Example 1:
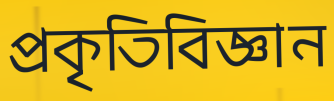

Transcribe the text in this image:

প্রকৃতিবিজ্ঞান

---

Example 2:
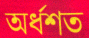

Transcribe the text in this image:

অর্ধশত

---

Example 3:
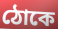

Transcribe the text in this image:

ঠোকে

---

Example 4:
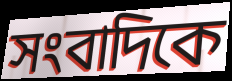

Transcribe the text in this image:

সংবাদিকে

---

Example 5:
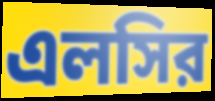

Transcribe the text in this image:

এলসির